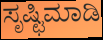
ಸೃಷ್ಟಿಮಾಡಿ